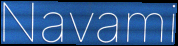
Navami